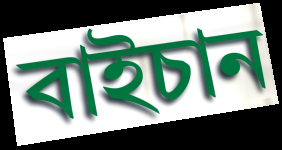
বাইচান